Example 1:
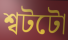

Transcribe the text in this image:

শ্বটটো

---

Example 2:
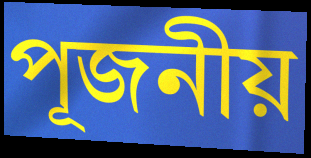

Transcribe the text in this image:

পূজনীয়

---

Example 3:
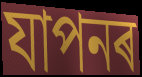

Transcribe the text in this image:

যাপনৰ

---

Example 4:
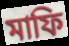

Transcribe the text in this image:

মাফি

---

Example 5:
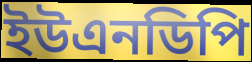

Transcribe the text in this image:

ইউএনডিপি